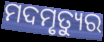
ମଦମୃତ୍ୟୁର